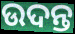
ଉଦନ୍ତ